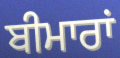
ਬੀਮਾਰਾਂ